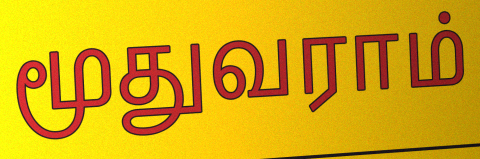
மூதுவராம்